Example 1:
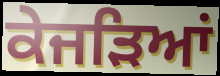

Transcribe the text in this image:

ਕੇਜੜਿਆਂ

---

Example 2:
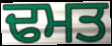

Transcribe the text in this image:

ਢਮਤ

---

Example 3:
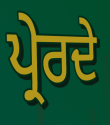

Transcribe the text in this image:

ਪ੍ਰੇਰਦੇ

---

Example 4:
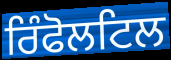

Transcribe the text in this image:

ਰਿੰਫੋਲਟਿਲ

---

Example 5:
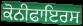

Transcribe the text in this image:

ਕੋਨੀਫਾਇਰਸ